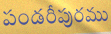
పండరీపురము